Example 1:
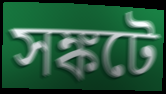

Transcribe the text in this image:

সঙ্কটে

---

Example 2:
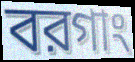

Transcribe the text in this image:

বরগাং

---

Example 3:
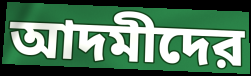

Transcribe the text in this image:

আদমীদের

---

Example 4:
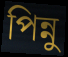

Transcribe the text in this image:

পিন্নু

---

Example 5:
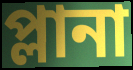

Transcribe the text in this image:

প্লানা